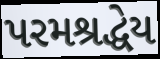
પરમશ્રદ્ધેય